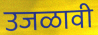
उजळावी